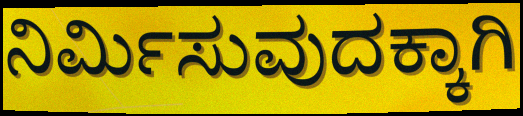
ನಿರ್ಮಿಸುವುದಕ್ಕಾಗಿ